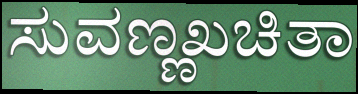
ಸುವಣ್ಣಖಚಿತಾ